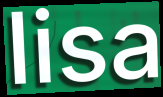
lisa